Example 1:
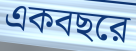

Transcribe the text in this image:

একবছরে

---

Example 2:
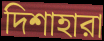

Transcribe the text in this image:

দিশাহারা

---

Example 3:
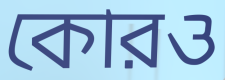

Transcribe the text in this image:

কোরও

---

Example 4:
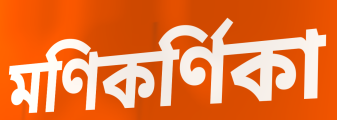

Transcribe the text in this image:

মণিকর্ণিকা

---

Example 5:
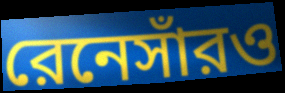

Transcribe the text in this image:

রেনেসাঁরও